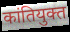
कांतियुक्त